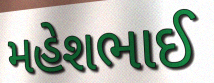
મહેશભાઈ